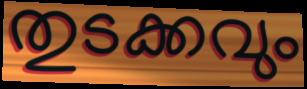
തുടക്കവും